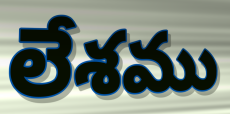
లేశము